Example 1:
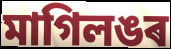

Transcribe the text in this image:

মাগিলঙৰ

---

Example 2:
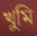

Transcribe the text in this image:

খুমি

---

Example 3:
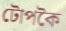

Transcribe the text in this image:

টোপকৈ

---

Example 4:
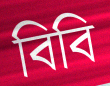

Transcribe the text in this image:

বিবি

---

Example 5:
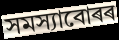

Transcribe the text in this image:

সমস্যাবোৰৰ